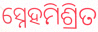
ସ୍ନେହମିଶ୍ରିତ